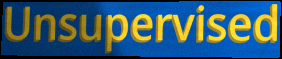
Unsupervised